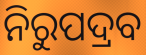
ନିରୁପଦ୍ରବ